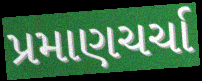
પ્રમાણચર્ચા